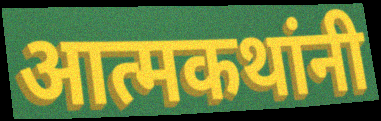
आत्मकथांनी